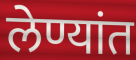
लेण्यांत